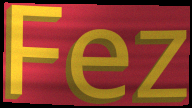
Fez